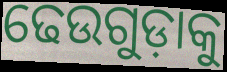
ଢେଉଗୁଡ଼ାକୁ